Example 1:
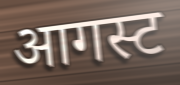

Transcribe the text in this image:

आगस्ट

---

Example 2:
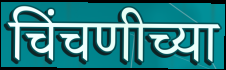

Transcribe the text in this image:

चिंचणीच्या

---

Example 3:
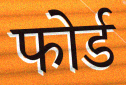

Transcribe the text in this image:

फोर्ड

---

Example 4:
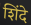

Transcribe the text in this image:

शिंदे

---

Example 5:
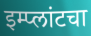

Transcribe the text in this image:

इम्प्लांटचा